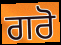
ਗਰੋ